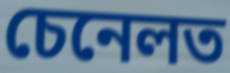
চেনেলত